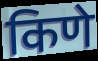
किणे